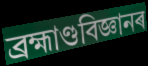
ব্ৰহ্মাণ্ডবিজ্ঞানৰ